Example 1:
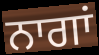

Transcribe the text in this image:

ਨਾਗਾਂ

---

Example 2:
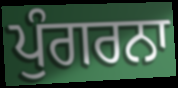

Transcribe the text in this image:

ਪੁੰਗਰਨਾ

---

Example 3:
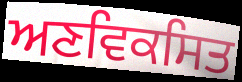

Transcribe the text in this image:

ਅਣਵਿਕਸਿਤ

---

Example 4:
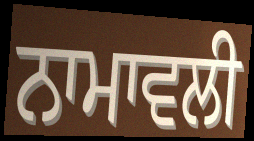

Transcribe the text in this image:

ਨਾਮਾਵਲੀ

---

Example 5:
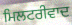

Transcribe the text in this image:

ਮਿਲਟਰੀਵਾਦ